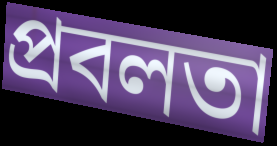
প্ৰবলতা